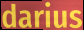
darius